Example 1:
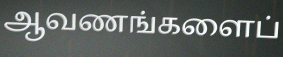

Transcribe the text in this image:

ஆவணங்களைப்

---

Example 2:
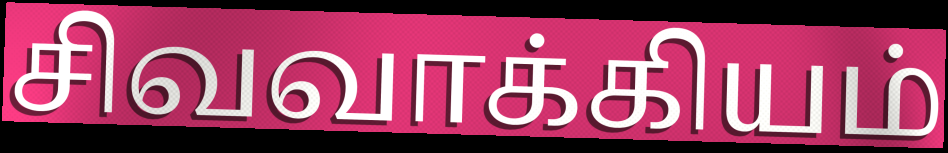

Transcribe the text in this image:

சிவவாக்கியம்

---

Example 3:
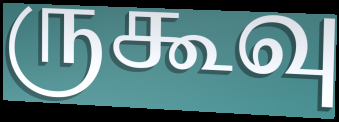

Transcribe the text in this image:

ருகூவு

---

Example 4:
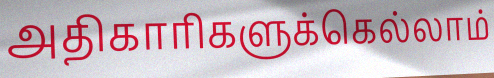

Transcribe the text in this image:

அதிகாரிகளுக்கெல்லாம்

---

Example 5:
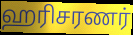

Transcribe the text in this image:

ஹரிசரணர்